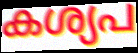
കശ്യപ